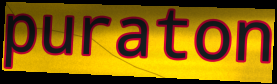
puraton